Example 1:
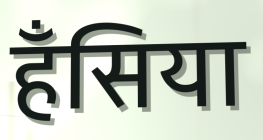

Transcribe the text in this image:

हँसिया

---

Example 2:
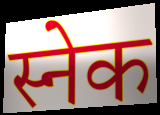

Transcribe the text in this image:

स्नेक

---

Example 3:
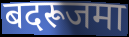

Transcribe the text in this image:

बदरूजमा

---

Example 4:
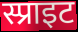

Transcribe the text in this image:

स्प्राइट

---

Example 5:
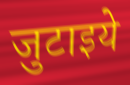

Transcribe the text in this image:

जुटाइये